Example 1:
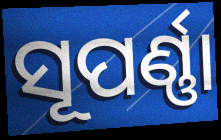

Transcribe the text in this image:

ସୂପର୍ଣ୍ଣା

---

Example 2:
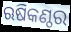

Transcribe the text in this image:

ଋଷିକଣ୍ଠର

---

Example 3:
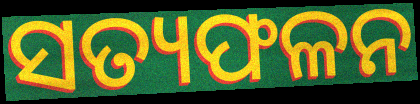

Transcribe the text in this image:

ସତ୍ୟଫଳନ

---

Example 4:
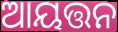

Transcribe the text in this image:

ଆୟତ୍ତନ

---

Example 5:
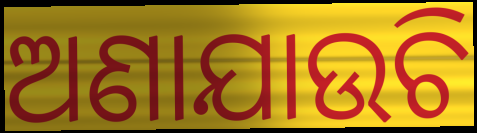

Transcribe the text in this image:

ଅଣାଯାଉଚି